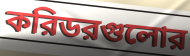
করিডরগুলোর